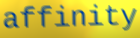
affinity